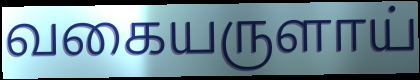
வகையருளாய்